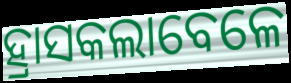
ହ୍ରାସକଲାବେଳେ